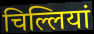
चिल्लियां